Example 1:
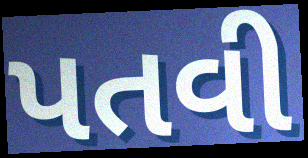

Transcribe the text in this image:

પતવી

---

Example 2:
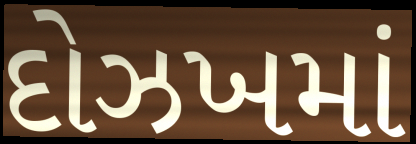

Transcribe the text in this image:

દોઝખમાં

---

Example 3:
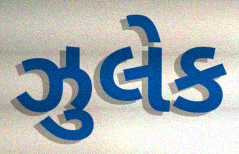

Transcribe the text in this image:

ઝુલેક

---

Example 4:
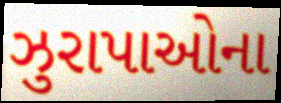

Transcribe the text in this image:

ઝુરાપાઓના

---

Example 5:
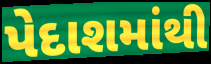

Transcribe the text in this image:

પેદાશમાંથી